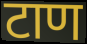
टाण